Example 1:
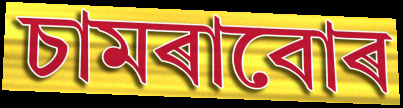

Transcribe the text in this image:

চামৰাবোৰ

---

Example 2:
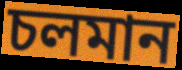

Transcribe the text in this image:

চলমান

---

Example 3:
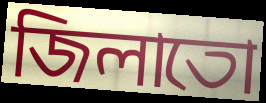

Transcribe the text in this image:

জিলাতো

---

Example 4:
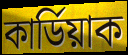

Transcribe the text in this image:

কাৰ্ডিয়াক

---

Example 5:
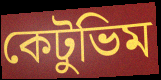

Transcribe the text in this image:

কেটুভিম